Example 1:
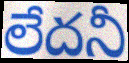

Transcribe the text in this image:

లేదనీ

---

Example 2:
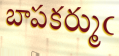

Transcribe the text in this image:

బాపకర్ముఁ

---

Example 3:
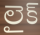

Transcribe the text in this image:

లైక్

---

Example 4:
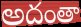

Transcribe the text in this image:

అదంతా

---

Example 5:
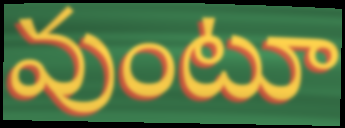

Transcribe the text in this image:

వుంటూ